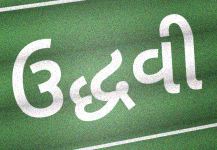
ઉદ્ધવી